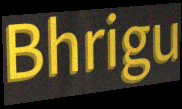
Bhrigu